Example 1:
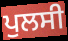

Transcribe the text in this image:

ਪੁਲਸੀ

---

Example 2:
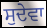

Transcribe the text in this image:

ਸੁਦੇਵਾ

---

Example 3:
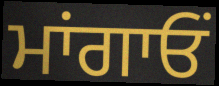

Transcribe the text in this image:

ਮਾਂਗਾਓਂ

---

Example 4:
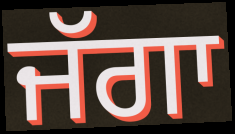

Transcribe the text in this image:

ਜੱਗਾ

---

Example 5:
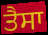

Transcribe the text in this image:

ਤੈਸਾ